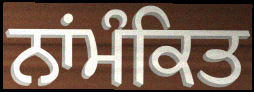
ਨਾਂਮੰਕਿਤ